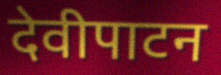
देवीपाटन